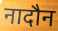
नादौन